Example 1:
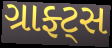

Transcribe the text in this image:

ગ્રાફ્ટ્સ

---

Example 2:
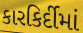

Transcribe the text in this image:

કારકિર્દીમાં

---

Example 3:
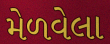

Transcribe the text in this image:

મેળવેલા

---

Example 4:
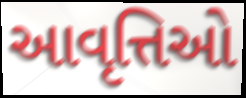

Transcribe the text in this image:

આવૃત્તિઓ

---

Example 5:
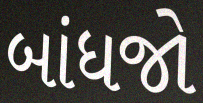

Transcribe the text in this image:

બાંધજો